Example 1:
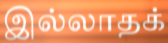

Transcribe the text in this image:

இல்லாதக்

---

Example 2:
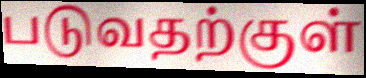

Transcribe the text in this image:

படுவதற்குள்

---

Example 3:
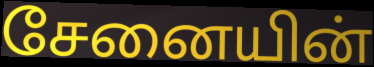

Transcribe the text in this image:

சேனையின்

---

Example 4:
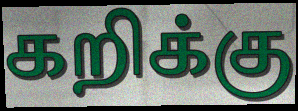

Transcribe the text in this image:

கறிக்கு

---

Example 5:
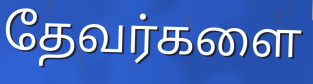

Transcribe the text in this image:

தேவர்களை